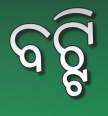
ବଟ୍ଟି